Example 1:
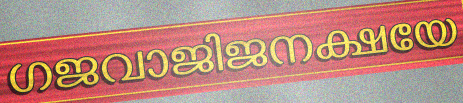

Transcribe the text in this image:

ഗജവാജിജനക്ഷയേ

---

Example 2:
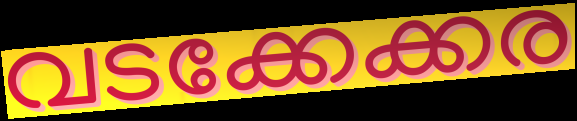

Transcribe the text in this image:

വടക്കേക്കര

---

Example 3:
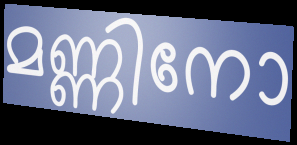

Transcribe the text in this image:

മണ്ണിനോ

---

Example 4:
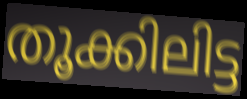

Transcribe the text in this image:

തൂക്കിലിട്ട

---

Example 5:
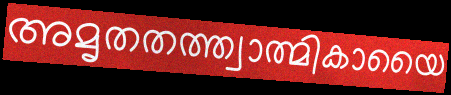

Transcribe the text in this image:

അമൃതതത്ത്വാത്മികായൈ